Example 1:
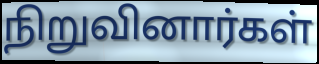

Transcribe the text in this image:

நிறுவினார்கள்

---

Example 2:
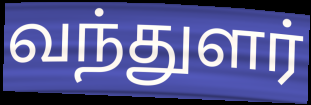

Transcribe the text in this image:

வந்துளர்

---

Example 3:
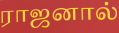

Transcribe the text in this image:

ராஜனால்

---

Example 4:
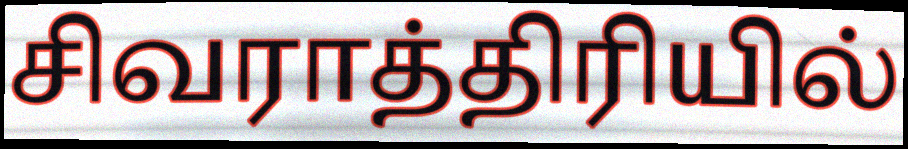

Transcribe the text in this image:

சிவராத்திரியில்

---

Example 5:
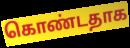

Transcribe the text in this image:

கொண்டதாக